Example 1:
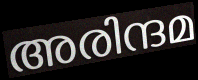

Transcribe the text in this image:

അരിന്ദമ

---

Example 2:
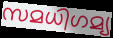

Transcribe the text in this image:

സമധിഗമ്യ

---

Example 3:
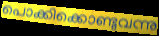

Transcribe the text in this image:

പൊക്കിക്കൊണ്ടുവന്നു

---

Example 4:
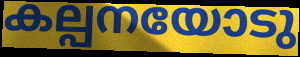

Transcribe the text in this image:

കല്പനയോടു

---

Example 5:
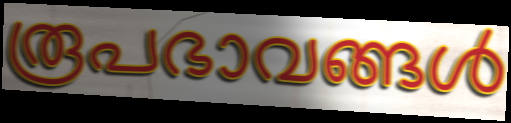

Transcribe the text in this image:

രൂപഭാവങ്ങൾ